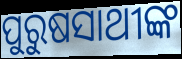
ପୁରୁଷସାଥୀଙ୍କ